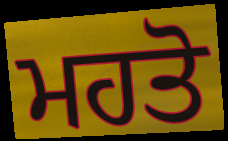
ਮਹਤੋ